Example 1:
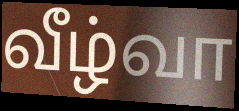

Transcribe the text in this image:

வீழ்வா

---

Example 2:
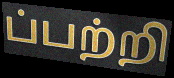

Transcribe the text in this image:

ப்பற்றி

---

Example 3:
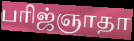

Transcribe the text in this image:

பரிஜ்ஞாதா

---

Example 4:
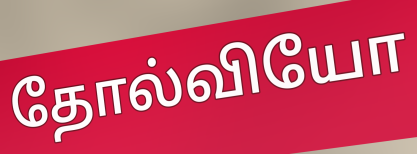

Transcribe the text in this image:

தோல்வியோ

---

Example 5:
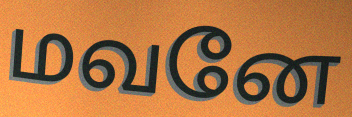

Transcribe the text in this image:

மவனே